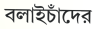
বলাইচাঁদের